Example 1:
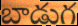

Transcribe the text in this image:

బాడుగ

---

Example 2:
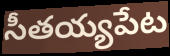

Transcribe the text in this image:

సీతయ్యపేట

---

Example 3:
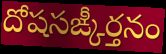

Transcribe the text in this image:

దోషసఙ్కీర్తనం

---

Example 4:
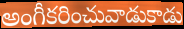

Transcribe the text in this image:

అంగీకరించువాడుకాడు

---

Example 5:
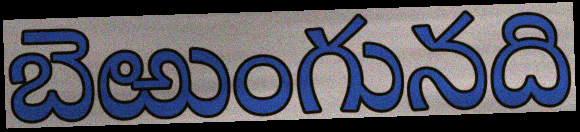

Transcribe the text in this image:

బెఱుంగునది